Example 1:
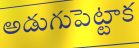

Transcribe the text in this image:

అడుగుపెట్టాక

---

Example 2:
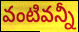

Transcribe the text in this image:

వంటివన్నీ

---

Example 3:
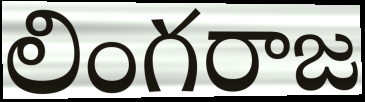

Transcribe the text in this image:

లింగరాజ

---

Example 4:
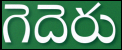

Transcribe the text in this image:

గెదెరు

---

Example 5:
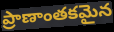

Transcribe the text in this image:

ప్రాణాంతకమైన